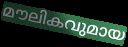
മൗലികവുമായ